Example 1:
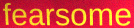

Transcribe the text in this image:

fearsome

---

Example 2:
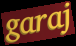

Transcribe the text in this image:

garaj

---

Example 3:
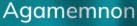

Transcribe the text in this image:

Agamemnon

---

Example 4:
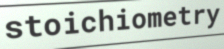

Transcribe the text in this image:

stoichiometry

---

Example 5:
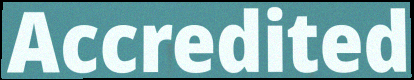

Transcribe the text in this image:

Accredited